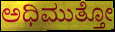
ಅಧಿಮುತ್ತೋ